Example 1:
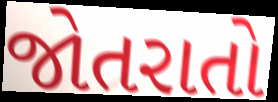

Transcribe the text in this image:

જોતરાતો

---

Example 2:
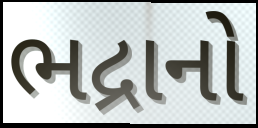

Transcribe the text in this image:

ભદ્રાનો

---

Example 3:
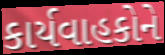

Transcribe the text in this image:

કાર્યવાહકોને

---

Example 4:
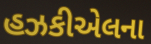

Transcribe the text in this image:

હઝકીએલના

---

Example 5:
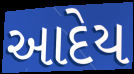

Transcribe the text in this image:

આદેય